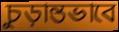
চুড়ান্তভাবে